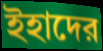
ইহাদের